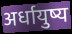
अर्धायुष्य